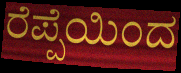
ರೆಪ್ಪೆಯಿಂದ